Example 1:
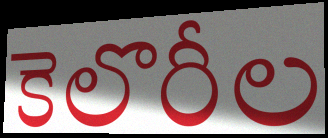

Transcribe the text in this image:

కెలొరీల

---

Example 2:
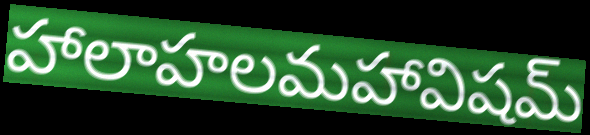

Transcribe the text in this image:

హాలాహలమహావిషమ్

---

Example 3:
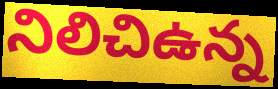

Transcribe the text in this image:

నిలిచిఉన్న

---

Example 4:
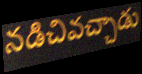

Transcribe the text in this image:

నడిచివచ్చాడు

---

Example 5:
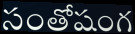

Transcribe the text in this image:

సంతోషంగ